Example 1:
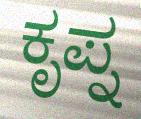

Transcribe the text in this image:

ಕೃಪ್ನ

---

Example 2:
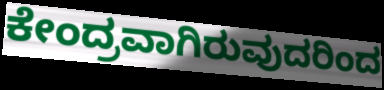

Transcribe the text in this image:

ಕೇಂದ್ರವಾಗಿರುವುದರಿಂದ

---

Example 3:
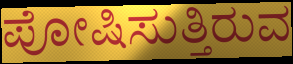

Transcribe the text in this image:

ಪೋಷಿಸುತ್ತಿರುವ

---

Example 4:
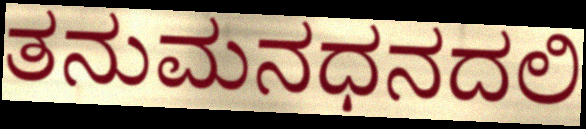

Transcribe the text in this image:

ತನುಮನಧನದಲಿ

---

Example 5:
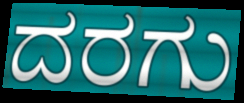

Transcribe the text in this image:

ದರಗು